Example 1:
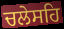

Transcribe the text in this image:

ਚਲੇਸਹਿ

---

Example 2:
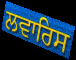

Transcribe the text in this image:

ਲਵਾਰਿਸ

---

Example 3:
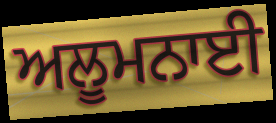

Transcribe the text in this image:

ਅਲੂਮਨਾਈ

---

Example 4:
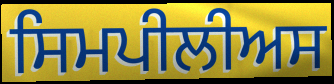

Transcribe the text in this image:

ਸਿਮਪੀਲੀਅਸ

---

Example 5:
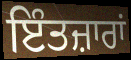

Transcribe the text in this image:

ਇੰਤਜ਼ਾਰਾਂ